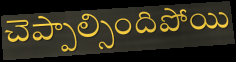
చెప్పాల్సిందిపోయి